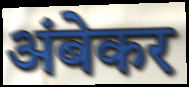
अंबेकर